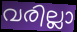
വരില്ലാ